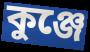
কুঞ্জে